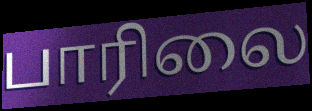
பாரிலை